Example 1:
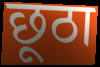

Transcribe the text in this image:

छूठा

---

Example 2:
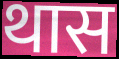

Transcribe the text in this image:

थास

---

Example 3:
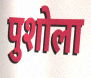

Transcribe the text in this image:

पुशोला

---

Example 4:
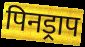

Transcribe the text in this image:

पिनड्राप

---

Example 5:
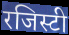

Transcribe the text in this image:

रजिस्टी